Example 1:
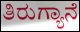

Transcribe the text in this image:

ತಿರುಗ್ಯಾನೆ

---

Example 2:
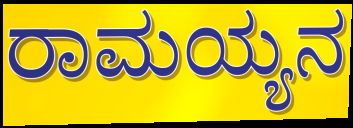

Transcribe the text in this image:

ರಾಮಯ್ಯನ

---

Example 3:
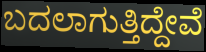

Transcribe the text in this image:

ಬದಲಾಗುತ್ತಿದ್ದೇವೆ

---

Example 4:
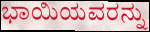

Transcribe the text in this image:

ಭಾಯಿಯವರನ್ನು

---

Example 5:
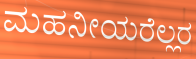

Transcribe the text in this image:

ಮಹನೀಯರೆಲ್ಲರ